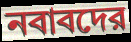
নবাবদের